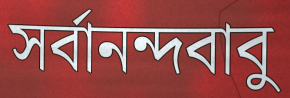
সর্বানন্দবাবু